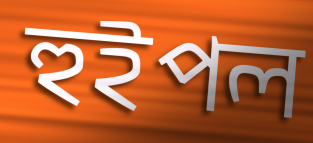
হুইপল